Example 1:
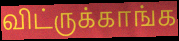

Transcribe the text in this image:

விட்ருக்காங்க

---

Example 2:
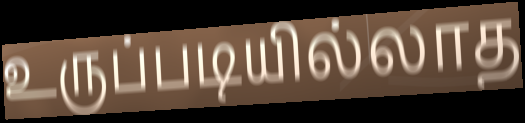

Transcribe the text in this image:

உருப்படியில்லாத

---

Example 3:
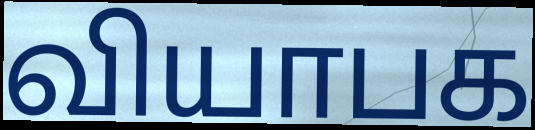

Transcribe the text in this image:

வியாபக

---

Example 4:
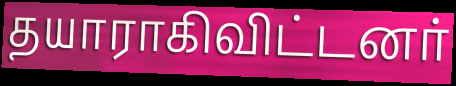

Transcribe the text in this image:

தயாராகிவிட்டனர்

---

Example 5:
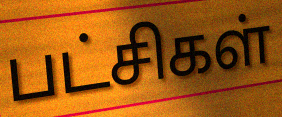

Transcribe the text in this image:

பட்சிகள்